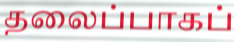
தலைப்பாகப்